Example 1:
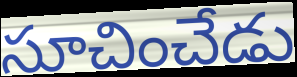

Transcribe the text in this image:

సూచించేడు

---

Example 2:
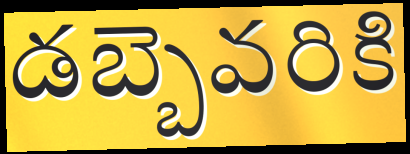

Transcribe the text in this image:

డబ్బెవరికి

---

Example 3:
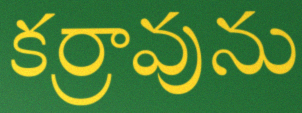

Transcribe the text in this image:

కర్రావును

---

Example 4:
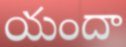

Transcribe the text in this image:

యందా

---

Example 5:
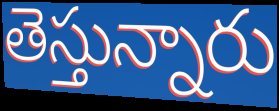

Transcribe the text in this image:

తెస్తున్నారు